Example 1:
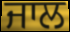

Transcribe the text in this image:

ਜਾਲ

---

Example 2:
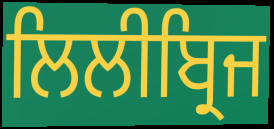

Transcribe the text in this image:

ਲਿਲੀਬ੍ਰਿਜ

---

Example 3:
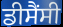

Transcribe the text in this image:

ਡੀਸੈਂਸੀ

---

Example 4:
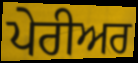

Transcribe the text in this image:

ਪੇਰੀਅਰ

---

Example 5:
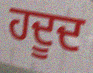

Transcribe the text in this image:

ਹਦੂਦ